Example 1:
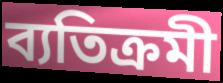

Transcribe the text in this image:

ব্যতিক্রমী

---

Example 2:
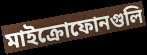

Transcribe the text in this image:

মাইক্রোফোনগুলি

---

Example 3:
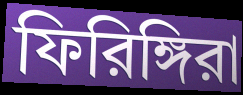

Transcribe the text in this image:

ফিরিঙ্গিরা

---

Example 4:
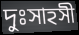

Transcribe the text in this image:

দুঃসাহসী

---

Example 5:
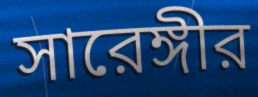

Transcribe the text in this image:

সারেঙ্গীর